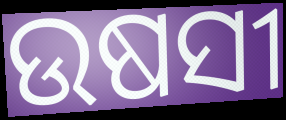
ଉଷସୀ